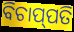
ବିଚାପ୍‌ପତି